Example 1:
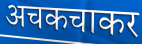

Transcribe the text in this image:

अचकचाकर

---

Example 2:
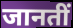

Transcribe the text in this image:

जानतीं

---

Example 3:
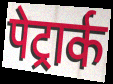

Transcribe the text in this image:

पेट्रार्क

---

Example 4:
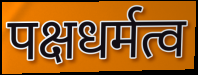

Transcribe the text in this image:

पक्षधर्मत्व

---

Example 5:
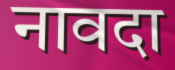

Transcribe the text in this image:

नावदा